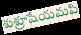
శుశ్రూషేయమపి